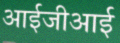
आईजीआई